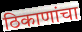
ठिकाणांचा